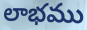
లాభము